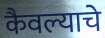
कैवल्याचे